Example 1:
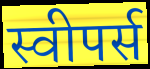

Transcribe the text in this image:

स्वीपर्स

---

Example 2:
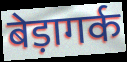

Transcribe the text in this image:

बेड़ागर्क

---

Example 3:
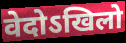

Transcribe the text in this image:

वेदोऽखिलो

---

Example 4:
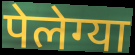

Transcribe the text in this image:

पेलेग्या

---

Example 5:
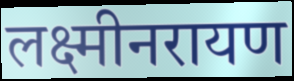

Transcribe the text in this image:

लक्ष्मीनरायण